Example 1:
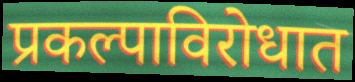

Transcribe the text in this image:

प्रकल्पाविरोधात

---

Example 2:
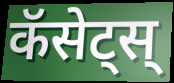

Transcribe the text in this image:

कॅसेट्स्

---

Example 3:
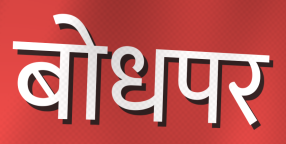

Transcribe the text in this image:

बोधपर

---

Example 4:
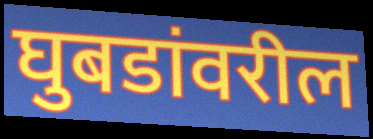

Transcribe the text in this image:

घुबडांवरील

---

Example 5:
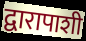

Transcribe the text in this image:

द्वारापाशी